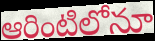
ఆరింటిలోనూ